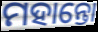
ମହାନ୍ତୋ